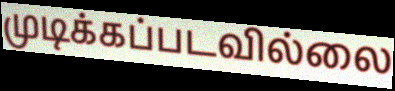
முடிக்கப்படவில்லை